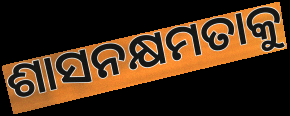
ଶାସନକ୍ଷମତାକୁ